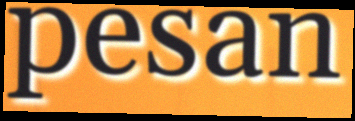
pesan